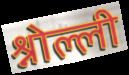
श्नोल्ली